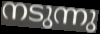
നടുന്നു